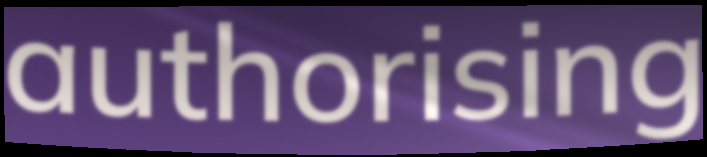
authorising